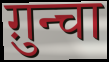
ग़ुन्चा